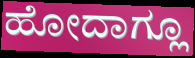
ಹೋದಾಗ್ಲೂ